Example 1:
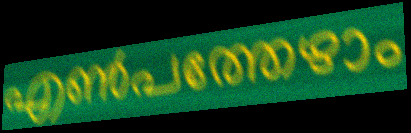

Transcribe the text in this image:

എൺപത്തേഴാം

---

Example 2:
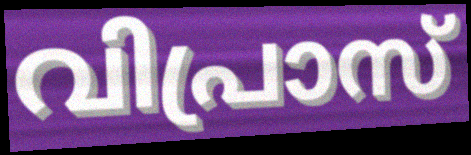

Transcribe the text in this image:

വിപ്രാസ്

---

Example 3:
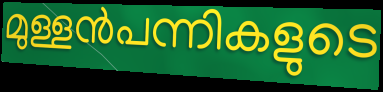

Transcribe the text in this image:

മുള്ളൻപന്നികളുടെ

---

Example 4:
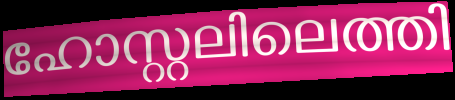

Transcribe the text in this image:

ഹോസ്റ്റലിലെത്തി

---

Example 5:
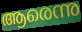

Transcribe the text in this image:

ആരെന്നു